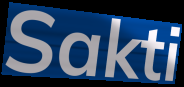
Sakti